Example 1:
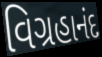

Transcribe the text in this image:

વિગ્રહાનંદ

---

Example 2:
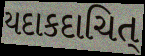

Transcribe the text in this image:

યદાકદાચિત્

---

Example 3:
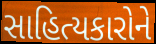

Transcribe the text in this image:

સાહિત્યકારોને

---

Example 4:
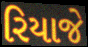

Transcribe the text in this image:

રિયાજે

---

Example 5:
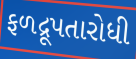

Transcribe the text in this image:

ફળદ્રૂપતારોધી